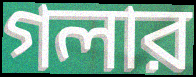
গলার